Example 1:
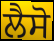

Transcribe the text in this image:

ਲੈਸੋ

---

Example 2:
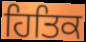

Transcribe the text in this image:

ਹਿਤਿਕ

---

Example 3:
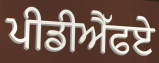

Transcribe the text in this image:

ਪੀਡੀਐੱਫਏ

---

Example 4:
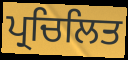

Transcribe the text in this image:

ਪ੍ਰਚਿਲਿਤ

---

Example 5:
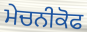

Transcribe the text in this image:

ਮੇਚਨੀਕੋਫ